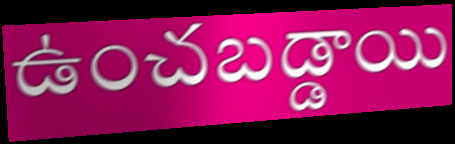
ఉంచబడ్డాయి